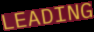
LEADING